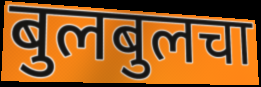
बुलबुलचा